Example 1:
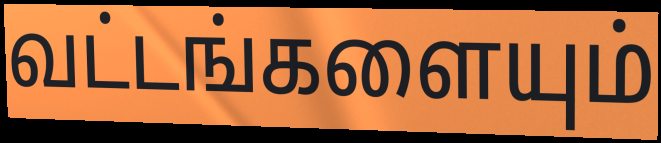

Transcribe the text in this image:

வட்டங்களையும்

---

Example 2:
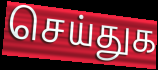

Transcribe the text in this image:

செய்துக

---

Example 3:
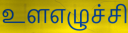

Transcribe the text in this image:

உளஎழுச்சி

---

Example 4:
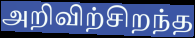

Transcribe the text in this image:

அறிவிற்சிறந்த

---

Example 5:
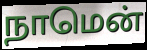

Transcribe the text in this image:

நாமென்